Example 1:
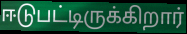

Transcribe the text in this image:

ஈடுபட்டிருக்கிறார்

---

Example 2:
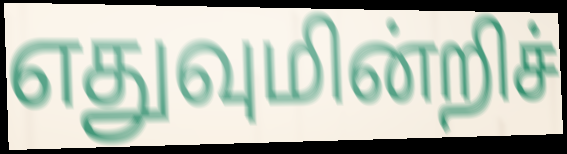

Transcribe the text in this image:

எதுவுமின்றிச்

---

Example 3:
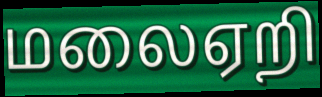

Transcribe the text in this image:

மலைஏறி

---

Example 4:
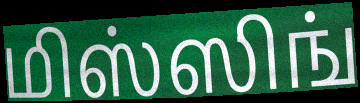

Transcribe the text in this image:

மிஸ்ஸிங்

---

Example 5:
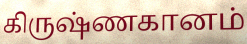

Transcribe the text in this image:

கிருஷ்ணகானம்